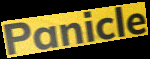
Panicle